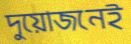
দুয়োজনেই